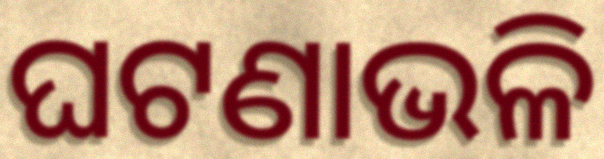
ଘଟଣାଭଳି